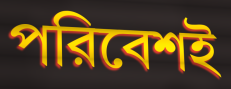
পরিবেশই